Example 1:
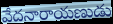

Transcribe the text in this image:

వేదనారాయణుడు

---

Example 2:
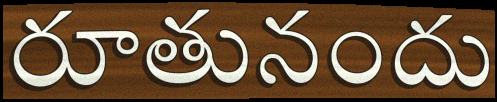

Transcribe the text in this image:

రూతునందు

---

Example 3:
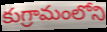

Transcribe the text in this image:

కుగ్రామంలోని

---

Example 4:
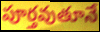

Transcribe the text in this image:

పూర్తవుతూనే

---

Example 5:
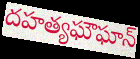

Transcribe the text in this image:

దహత్యఘౌఘాన్